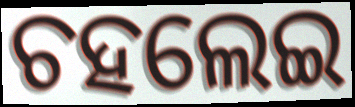
ଚହଲେଇ